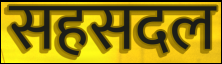
सहसदल